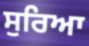
ਸੁਰਿਆ